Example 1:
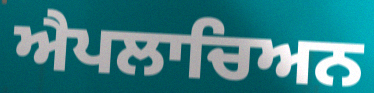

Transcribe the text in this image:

ਐਪਲਾਚਿਅਨ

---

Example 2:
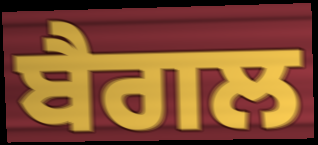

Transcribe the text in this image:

ਬੈਗਲ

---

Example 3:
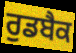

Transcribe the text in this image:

ਰੁਡਬੈਕ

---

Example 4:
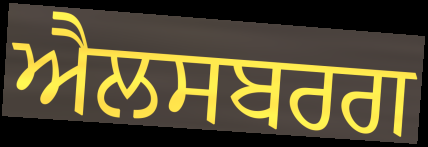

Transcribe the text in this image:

ਐਲਸਬਰਗ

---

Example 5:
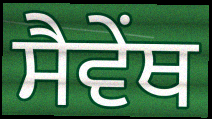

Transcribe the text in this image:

ਸੈਵੇਂਥ